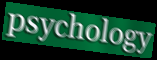
psychology